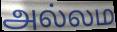
அல்லம